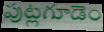
పుట్లగూడెం